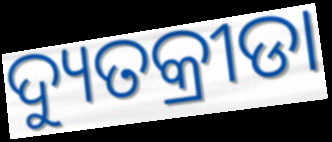
ଦ୍ୟୁତକ୍ରୀଡା